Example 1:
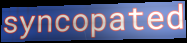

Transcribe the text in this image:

syncopated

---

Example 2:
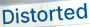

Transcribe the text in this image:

Distorted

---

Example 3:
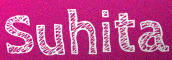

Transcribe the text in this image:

Suhita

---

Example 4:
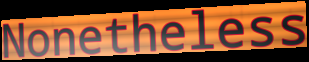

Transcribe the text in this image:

Nonetheless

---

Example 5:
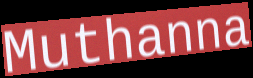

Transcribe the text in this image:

Muthanna